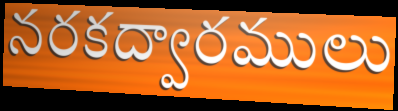
నరకద్వారములు